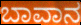
ಬಾವಾನ